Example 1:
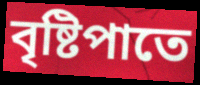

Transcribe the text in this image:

বৃষ্টিপাতে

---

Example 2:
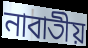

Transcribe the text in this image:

নাবাতীয়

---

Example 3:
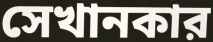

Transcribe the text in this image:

সেখানকার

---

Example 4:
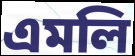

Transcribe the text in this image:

এমলি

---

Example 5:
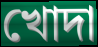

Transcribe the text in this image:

খোদা